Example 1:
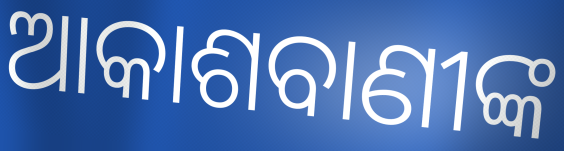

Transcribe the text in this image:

ଆକାଶବାଣୀଙ୍କ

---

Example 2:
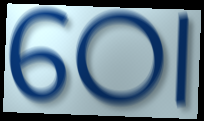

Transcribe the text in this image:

ଠୋ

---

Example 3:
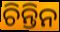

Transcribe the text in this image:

ଚିନ୍ତିନ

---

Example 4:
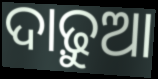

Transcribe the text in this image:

ଦାଢ଼ୁଆ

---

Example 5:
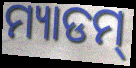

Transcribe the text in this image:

ମ୍ୟାଡମ୍